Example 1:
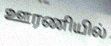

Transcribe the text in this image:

ஊரணியில்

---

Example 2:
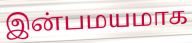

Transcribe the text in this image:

இன்பமயமாக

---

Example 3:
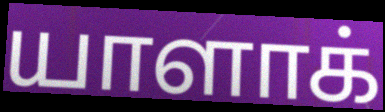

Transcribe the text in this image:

யாளாக்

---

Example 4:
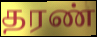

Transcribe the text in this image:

தரண்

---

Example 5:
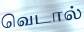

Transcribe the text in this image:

வெடால்